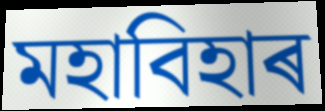
মহাবিহাৰ